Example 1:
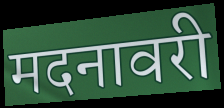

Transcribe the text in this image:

मदनावरी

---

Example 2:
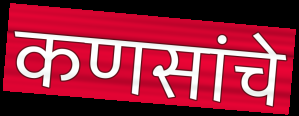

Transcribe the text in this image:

कणसांचे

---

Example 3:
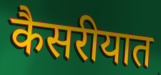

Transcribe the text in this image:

कैसरीयात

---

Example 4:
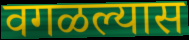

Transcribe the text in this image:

वगळल्यास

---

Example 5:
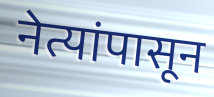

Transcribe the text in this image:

नेत्यांपासून